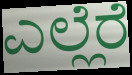
ಎಲ್ಲೆರೆ